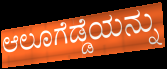
ಆಲೂಗೆಡ್ಡೆಯನ್ನು